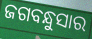
ଜଗବନ୍ଧୁସାର